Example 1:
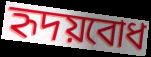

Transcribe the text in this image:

হৃদয়বোধ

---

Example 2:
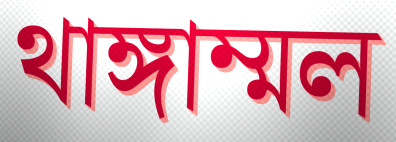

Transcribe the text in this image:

থাঙ্গাম্মল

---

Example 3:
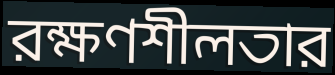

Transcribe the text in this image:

রক্ষণশীলতার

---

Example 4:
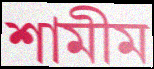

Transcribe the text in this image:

শামীম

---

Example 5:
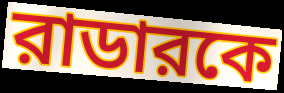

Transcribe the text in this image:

রাডারকে